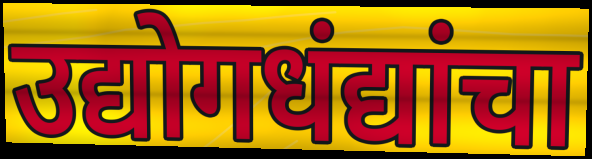
उद्योगधंद्यांचा